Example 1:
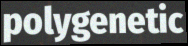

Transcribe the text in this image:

polygenetic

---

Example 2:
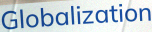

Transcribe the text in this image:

Globalization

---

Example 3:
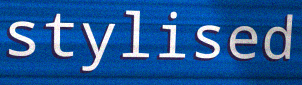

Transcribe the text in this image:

stylised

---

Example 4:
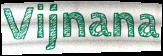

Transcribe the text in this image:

Vijnana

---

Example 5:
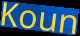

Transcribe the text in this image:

Koun